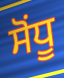
ਸੋਂਧੂ